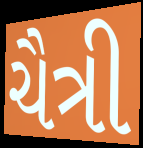
ચૈત્રી